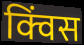
क्विंस